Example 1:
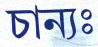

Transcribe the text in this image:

চান্যঃ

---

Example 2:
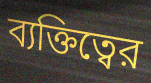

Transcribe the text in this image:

ব্যক্তিত্বের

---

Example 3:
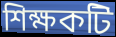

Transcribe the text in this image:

শিক্ষকটি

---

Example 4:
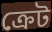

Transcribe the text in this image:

ক্রেট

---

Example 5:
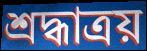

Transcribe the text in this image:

শ্রদ্ধাত্রয়